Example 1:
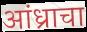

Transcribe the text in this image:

आंध्राचा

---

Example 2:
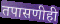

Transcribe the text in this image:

तपासणीही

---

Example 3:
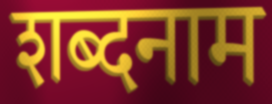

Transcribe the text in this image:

शब्दनाम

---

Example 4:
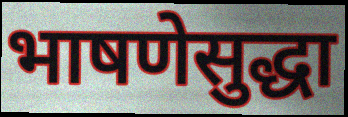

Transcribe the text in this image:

भाषणेसुद्धा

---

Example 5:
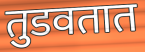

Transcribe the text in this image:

तुडवतात